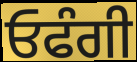
ਓਫੰਗੀ